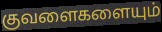
குவளைகளையும்